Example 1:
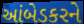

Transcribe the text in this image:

આંબેડકરને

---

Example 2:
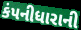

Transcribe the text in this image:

કંપનીધારાની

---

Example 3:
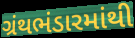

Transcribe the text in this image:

ગ્રંથભંડારમાંથી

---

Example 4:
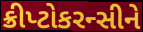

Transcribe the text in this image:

ક્રીપ્ટોકરન્સીને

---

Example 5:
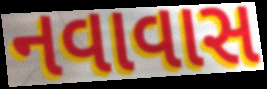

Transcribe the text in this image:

નવાવાસ